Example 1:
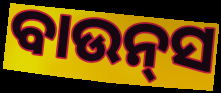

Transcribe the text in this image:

ବାଉନ୍‍ସ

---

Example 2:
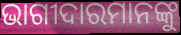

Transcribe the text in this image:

ଭାଗୀଦାରମାନଙ୍କୁ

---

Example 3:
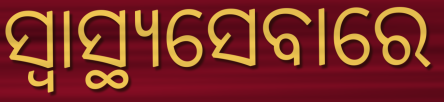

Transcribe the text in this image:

ସ୍ୱାସ୍ଥ୍ୟସେବାରେ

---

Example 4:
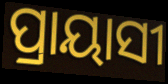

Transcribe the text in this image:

ପ୍ରାୟାସୀ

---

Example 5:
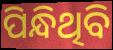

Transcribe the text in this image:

ପିନ୍ଧିଥିବି